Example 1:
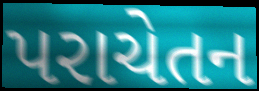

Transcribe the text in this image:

પરાચેતન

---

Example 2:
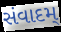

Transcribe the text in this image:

સંવાદમ્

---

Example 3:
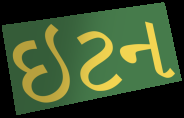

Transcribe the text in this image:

ઇટન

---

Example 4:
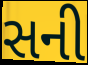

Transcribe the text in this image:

સની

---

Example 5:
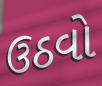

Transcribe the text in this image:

ઉઠવો